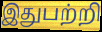
இதுபற்றி